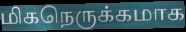
மிகநெருக்கமாக